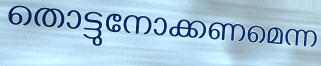
തൊട്ടുനോക്കണമെന്ന